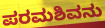
ಪರಮಶಿವನು